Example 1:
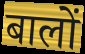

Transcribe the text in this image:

बालों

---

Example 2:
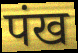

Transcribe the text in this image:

पंख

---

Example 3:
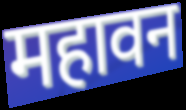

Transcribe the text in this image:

महावन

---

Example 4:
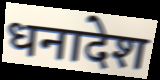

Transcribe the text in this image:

धनादेश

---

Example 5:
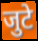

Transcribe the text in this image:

जुटे